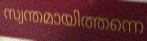
സ്വന്തമായിത്തന്നെ